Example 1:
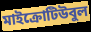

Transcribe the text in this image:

মাইক্রোটিউবুল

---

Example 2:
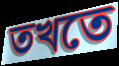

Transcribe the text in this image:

তখতে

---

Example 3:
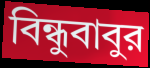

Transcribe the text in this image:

বিন্ধুবাবুর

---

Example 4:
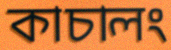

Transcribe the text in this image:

কাচালং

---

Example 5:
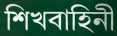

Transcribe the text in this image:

শিখবাহিনী